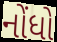
નોંધો